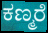
ಕಣ್ಮರೆ